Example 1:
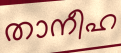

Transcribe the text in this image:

താനീഹ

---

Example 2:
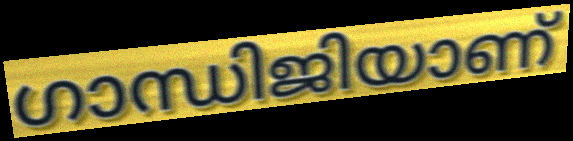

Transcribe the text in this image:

ഗാന്ധിജിയാണ്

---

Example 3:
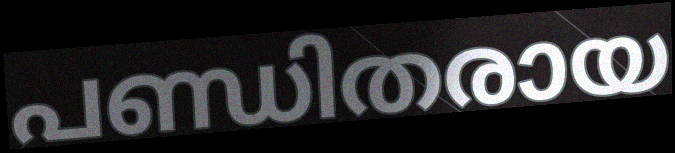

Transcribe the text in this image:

പണ്ഡിതരായ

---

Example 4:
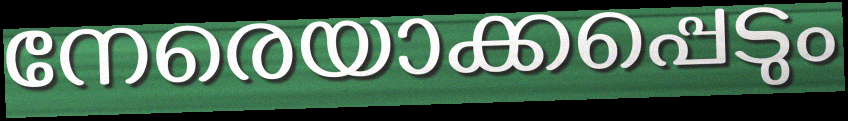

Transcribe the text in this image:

നേരെയാക്കപ്പെടും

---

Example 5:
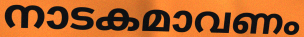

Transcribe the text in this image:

നാടകമാവണം